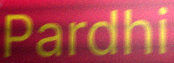
Pardhi